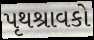
પૃથશ્રાવકો